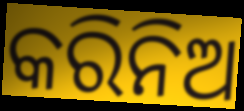
କରିନିଅ